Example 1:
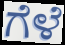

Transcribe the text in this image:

ಗೆಳೆ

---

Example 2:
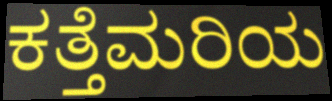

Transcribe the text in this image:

ಕತ್ತೆಮರಿಯ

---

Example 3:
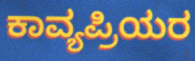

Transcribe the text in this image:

ಕಾವ್ಯಪ್ರಿಯರ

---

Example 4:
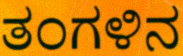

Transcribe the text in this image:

ತಂಗಳಿನ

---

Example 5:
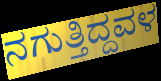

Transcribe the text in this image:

ನಗುತ್ತಿದ್ದವಳ